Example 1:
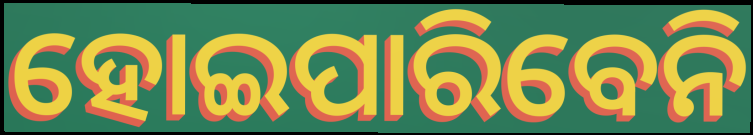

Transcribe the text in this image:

ହୋଇପାରିବେନି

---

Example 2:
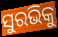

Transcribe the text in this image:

ସୁରଭିକୁ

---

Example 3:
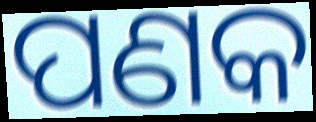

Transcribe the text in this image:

ପଣକ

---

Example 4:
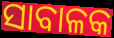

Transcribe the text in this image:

ସାବାଳକ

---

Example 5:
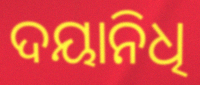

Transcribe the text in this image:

ଦୟାନିଧି